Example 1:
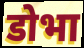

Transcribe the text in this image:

डोभा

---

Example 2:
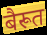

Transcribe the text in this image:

बैरूत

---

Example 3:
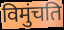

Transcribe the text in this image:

विमुंचति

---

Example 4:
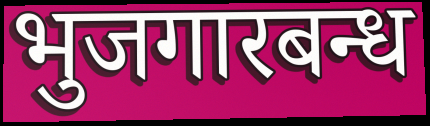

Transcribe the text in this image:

भुजगारबन्ध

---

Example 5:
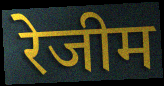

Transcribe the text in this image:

रेजीम